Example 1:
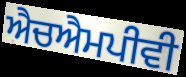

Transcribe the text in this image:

ਐਚਐਮਪੀਵੀ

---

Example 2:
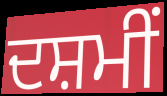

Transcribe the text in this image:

ਦਸ਼ਮੀਂ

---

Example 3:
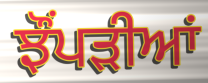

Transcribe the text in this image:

ਝੌਂਪੜੀਆਂ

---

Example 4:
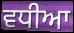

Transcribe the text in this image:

ਵਧੀਆ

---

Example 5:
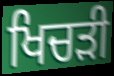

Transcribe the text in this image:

ਖਿਚੜੀ